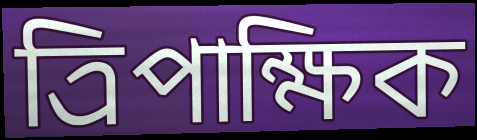
ত্ৰিপাক্ষিক